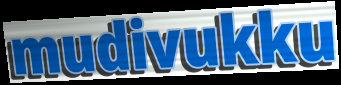
mudivukku